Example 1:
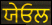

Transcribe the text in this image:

ਯੇਓਲ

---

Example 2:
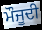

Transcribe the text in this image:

ਮੌਜੂਦੀ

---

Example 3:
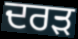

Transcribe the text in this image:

ਦਰੜ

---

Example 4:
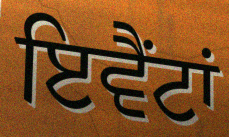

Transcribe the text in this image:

ਇਵੈਂਟਾਂ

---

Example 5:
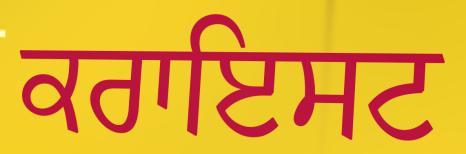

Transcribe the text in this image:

ਕਰਾਇਸਟ